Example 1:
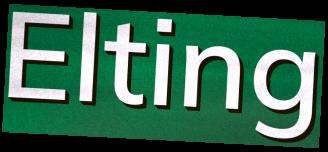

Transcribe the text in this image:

Elting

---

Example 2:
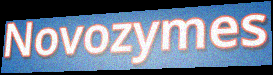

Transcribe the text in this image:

Novozymes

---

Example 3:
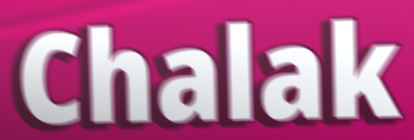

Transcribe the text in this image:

Chalak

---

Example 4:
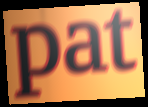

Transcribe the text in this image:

pat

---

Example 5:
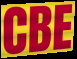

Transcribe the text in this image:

CBE